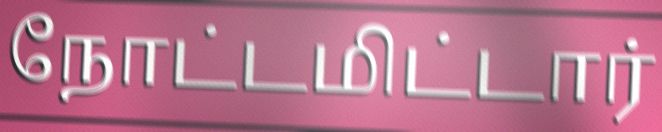
நோட்டமிட்டார்